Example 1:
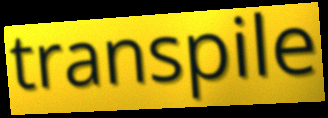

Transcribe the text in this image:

transpile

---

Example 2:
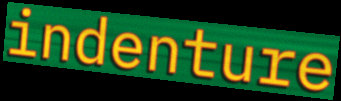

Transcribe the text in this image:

indenture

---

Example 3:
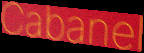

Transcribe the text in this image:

Cabanel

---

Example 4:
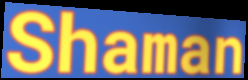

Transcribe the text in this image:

Shaman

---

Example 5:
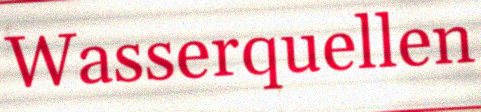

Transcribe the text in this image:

Wasserquellen